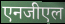
एनजीएल